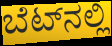
ಬೆಟ್‌ನಲ್ಲಿ